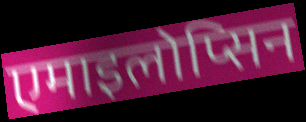
एमाइलोप्सिन